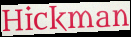
Hickman